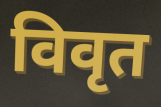
विवृत